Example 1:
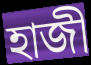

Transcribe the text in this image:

হাজী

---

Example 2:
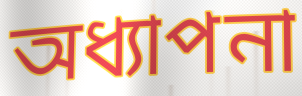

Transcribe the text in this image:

অধ্যাপনা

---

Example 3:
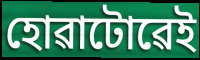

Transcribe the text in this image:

হোৱাটোৱেই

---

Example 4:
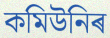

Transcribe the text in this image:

কমিউনিৰ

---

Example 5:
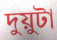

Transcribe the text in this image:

দুয়ুটা